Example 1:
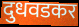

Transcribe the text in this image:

दुधवडकर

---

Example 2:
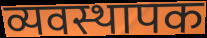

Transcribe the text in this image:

व्यवस्थापक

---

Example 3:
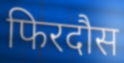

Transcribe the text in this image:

फिरदौस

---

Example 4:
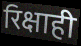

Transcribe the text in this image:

रिक्षाही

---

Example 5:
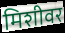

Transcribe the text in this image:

मिशीवर